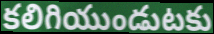
కలిగియుండుటకు